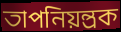
তাপনিয়ন্ত্রক